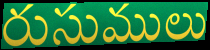
రుసుములు